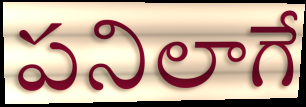
పనిలాగే